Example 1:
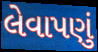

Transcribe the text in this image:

લેવાપણું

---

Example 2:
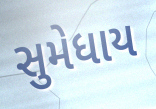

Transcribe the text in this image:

સુમેધાય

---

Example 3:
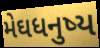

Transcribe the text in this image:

મેઘધનુષ્ય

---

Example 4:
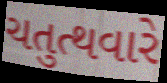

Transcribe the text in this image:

ચતુત્થવારે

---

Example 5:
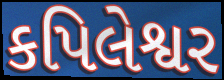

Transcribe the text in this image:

કપિલેશ્વર